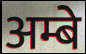
अम्बे